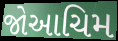
જોઆચિમ